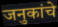
जनुकांचे